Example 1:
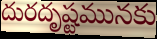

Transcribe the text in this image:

దురదృష్టమునకు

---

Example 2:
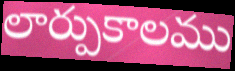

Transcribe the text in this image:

లార్పుకాలము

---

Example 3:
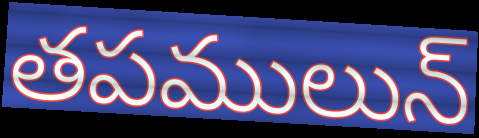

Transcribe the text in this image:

తపములున్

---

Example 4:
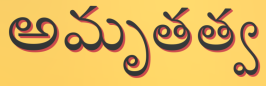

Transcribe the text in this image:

అమృతత్వ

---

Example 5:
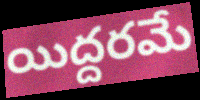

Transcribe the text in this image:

యిద్దరమే